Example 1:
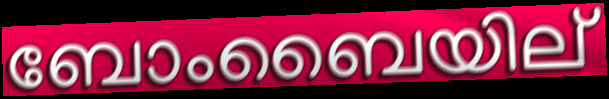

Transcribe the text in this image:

ബോംബൈയില്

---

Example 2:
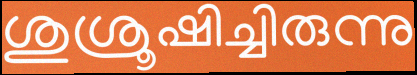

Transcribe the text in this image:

ശുശ്രൂഷിച്ചിരുന്നു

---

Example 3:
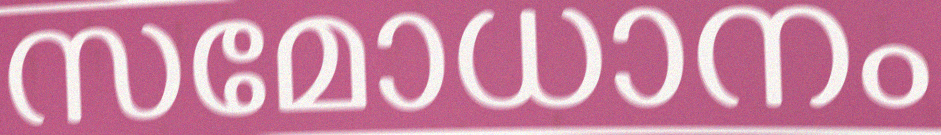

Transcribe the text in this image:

സമോധാനം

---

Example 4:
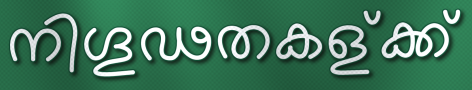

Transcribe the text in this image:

നിഗൂഢതകള്ക്ക്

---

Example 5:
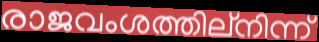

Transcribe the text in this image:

രാജവംശത്തില്നിന്ന്